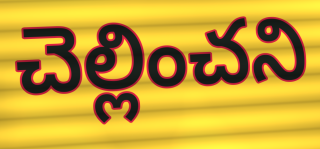
చెల్లించని